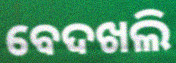
ବେଦଖଲି